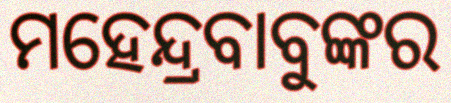
ମହେନ୍ଦ୍ରବାବୁଙ୍କର